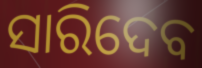
ସାରିଦେବ